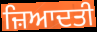
ਜ਼ਿਆਦਤੀ